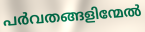
പർവതങ്ങളിന്മേൽ